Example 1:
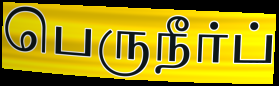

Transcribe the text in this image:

பெருநீர்ப்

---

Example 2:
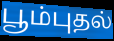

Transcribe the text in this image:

பூம்புதல்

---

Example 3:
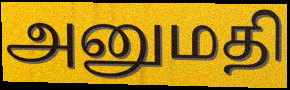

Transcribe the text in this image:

அனுமதி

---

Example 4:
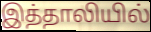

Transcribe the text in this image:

இத்தாலியில்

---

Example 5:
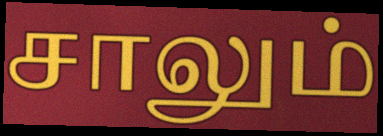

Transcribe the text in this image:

சாலும்